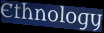
Ethnology